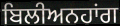
ਬਿਲੀਅਨਹਾਂਗ